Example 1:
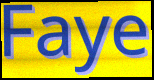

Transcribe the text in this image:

Faye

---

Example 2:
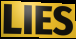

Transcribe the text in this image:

LIES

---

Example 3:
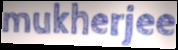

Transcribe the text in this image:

mukherjee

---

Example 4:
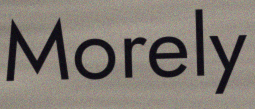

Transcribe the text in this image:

Morely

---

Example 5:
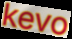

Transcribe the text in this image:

kevo